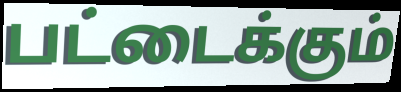
பட்டைக்கும்